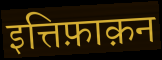
इत्तिफ़ाक़न